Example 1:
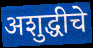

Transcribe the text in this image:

अशुद्धीचे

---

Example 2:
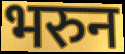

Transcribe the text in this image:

भरुन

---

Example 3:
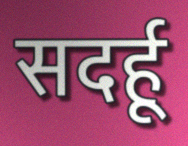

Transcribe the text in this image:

सदर्हू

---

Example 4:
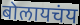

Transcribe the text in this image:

बोलायचंय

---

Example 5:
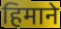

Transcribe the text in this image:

हिमाने